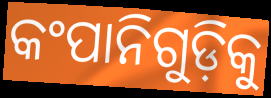
କଂପାନିଗୁଡ଼ିକୁ